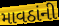
માવઠાંની